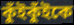
কুঁইকুঁইকে